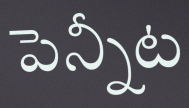
పెన్నీట